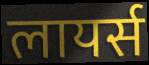
लायर्स